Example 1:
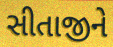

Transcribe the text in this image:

સીતાજીને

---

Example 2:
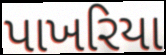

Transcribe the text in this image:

પાખરિયા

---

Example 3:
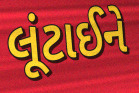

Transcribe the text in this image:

લૂંટાઈને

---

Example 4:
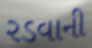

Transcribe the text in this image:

રડવાની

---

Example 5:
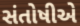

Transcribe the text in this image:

સંતોષીએ